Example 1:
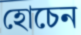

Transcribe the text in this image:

হোচেন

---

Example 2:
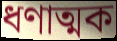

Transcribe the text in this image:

ধণাত্মক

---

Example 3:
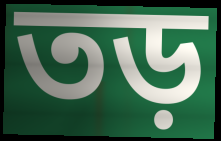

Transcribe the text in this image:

তড়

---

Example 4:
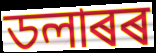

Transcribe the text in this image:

ডলাৰৰ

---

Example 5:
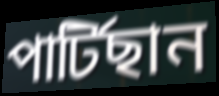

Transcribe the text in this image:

পাৰ্টিছান